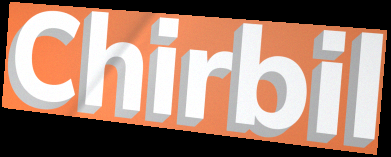
Chirbil